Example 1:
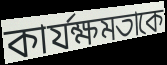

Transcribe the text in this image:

কার্যক্ষমতাকে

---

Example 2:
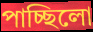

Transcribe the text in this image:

পাচ্ছিলো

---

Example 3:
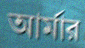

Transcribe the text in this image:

আর্মার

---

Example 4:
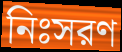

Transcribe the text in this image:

নিঃসরণ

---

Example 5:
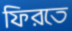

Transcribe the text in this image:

ফিরতে